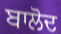
ਬਾਲੋਦ